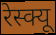
रेस्क्यू